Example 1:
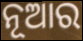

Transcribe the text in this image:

ନୂଆର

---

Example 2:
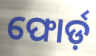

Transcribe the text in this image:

ଫୋର୍ଡ଼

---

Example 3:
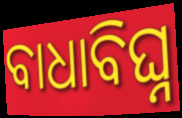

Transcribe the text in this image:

ବାଧାବିଘ୍ନ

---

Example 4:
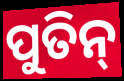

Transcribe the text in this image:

ପୁତିନ୍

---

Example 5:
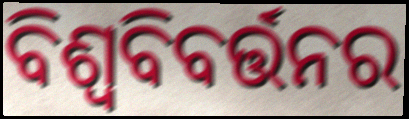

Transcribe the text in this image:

ବିଶ୍ଵବିବର୍ତ୍ତନର